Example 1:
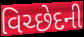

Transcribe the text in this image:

વિચ્છેદની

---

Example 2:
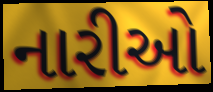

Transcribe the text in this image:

નારીઓ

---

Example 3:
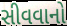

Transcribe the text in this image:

સીવવાનો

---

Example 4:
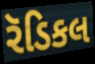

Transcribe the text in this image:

રૅડિકલ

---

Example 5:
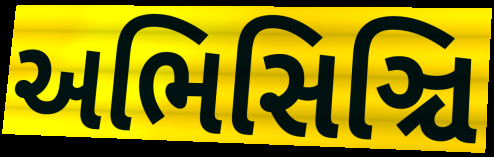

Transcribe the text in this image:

અભિસિઞ્ચિ